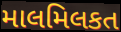
માલમિલકત